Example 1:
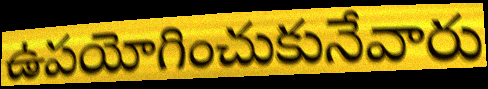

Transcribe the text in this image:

ఉపయోగించుకునేవారు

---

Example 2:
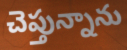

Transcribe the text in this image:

చెప్తున్నాను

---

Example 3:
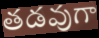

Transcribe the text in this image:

తడవుగా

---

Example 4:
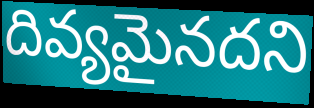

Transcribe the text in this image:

దివ్యమైనదని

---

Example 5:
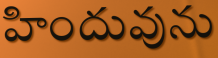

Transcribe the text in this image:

హిందువును